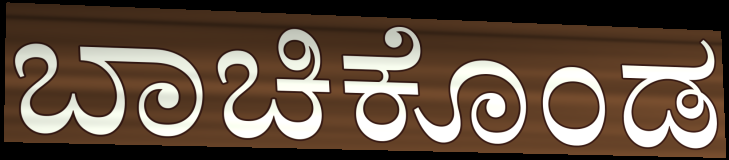
ಬಾಚಿಕೊಂಡ